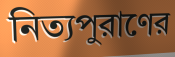
নিত্যপুরাণের